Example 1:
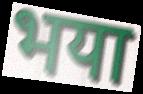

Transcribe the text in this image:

भया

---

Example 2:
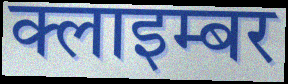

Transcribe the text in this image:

क्लाइम्बर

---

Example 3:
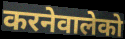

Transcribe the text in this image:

करनेवालेको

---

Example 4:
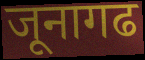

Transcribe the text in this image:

जूनागढ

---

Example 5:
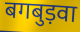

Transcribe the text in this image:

बगबुड़वा